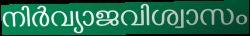
നിർവ്യാജവിശ്വാസം